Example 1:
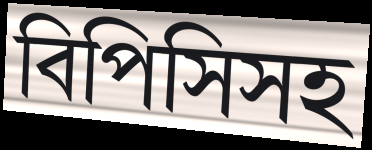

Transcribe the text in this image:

বিপিসিসহ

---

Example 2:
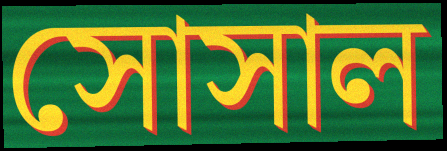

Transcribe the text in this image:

সোসাল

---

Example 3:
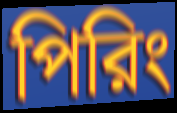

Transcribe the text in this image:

পিরিং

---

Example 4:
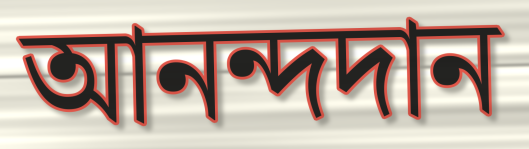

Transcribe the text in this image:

আনন্দদান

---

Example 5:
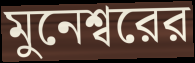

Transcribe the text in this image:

মুনেশ্বরের